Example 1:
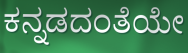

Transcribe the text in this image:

ಕನ್ನಡದಂತೆಯೇ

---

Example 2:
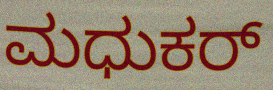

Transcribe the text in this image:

ಮಧುಕರ್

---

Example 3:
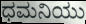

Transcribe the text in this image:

ಧಮನಿಯು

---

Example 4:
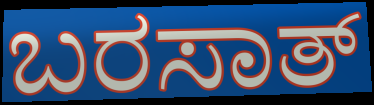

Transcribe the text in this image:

ಬರಸಾತ್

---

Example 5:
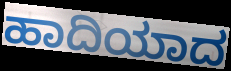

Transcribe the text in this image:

ಹಾದಿಯಾದ